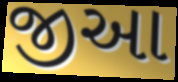
જીઆ